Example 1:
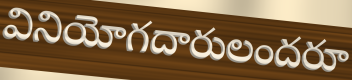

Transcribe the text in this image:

వినియోగదారులందరూ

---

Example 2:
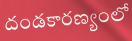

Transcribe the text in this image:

దండకారణ్యంలో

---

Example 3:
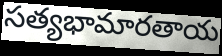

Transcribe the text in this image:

సత్యభామారతాయ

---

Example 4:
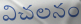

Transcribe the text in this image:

విచలనం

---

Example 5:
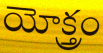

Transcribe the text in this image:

యోక్త్రం